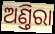
ଅଣ୍ତିରା